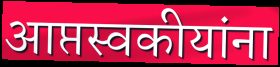
आप्तस्वकीयांना